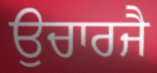
ਉਚਾਰਜੈ